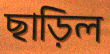
ছাড়িল